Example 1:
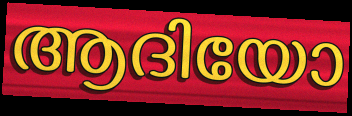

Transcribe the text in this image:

ആദിയോ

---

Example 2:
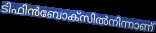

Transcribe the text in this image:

ടിഫിൻബോക്സിൽനിന്നാണ്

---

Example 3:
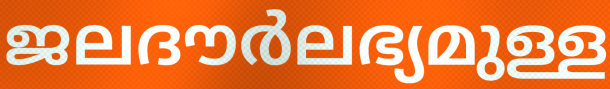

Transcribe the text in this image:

ജലദൗർലഭ്യമുള്ള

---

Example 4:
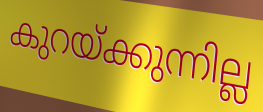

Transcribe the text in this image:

കുറയ്ക്കുന്നില്ല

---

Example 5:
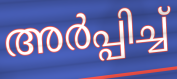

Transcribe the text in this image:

അർപ്പിച്ച്